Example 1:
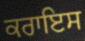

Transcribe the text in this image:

ਕਰਾਇਸ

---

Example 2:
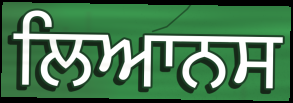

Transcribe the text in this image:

ਲਿਆਨਸ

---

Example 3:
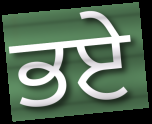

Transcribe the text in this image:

ਭਏ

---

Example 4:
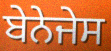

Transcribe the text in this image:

ਬੇਨੇਜੇਸ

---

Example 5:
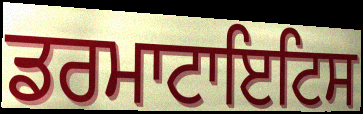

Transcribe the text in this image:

ਡਰਮਾਟਾਇਟਿਸ